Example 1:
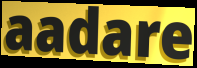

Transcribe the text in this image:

aadare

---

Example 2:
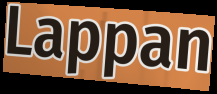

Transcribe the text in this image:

Lappan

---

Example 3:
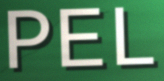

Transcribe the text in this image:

PEL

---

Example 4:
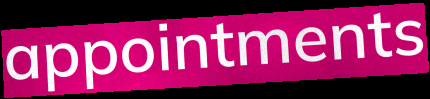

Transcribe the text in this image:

appointments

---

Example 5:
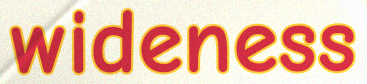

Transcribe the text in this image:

wideness